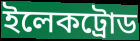
ইলেকট্রোড